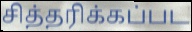
சித்தரிக்கப்பட